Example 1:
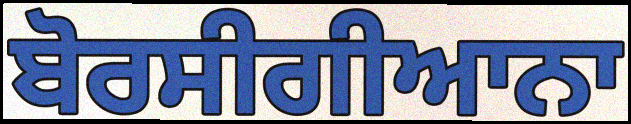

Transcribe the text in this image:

ਬੋਰਸੀਗੀਆਨਾ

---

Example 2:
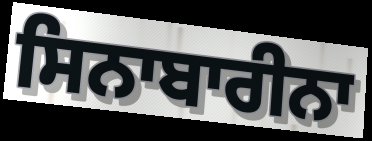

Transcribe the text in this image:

ਸਿਨਾਬਾਰੀਨਾ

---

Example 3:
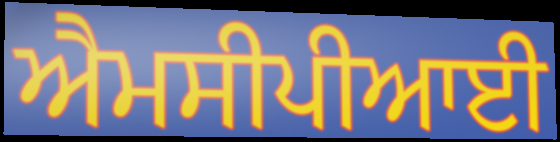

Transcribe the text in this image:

ਐਮਸੀਪੀਆਈ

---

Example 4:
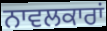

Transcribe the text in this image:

ਨਾਵਲਕਾਰਾਂ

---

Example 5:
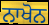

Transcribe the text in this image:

ਨਾਖੋਨ